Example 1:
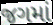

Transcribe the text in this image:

જગમાં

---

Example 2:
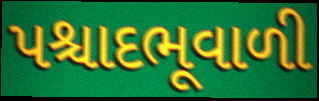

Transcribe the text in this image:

પશ્ચાદભૂવાળી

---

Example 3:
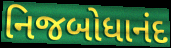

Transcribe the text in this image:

નિજબોધાનંદ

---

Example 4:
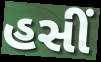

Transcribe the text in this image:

હસીં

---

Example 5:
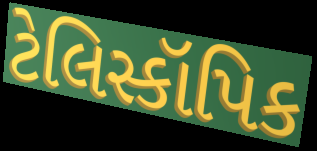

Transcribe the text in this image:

ટેલિસ્કૉપિક